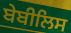
ਬੇਬੀਲਿਸ